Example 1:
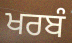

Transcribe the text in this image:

ਖਰਬੰ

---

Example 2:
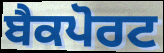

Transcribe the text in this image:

ਬੈਕਪੋਰਟ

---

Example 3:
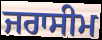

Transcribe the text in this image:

ਜਰਾਸੀਮ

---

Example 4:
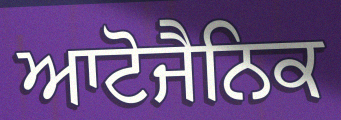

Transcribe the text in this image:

ਆਟੋਜੈਨਿਕ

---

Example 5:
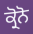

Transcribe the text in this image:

ਕ੍ਰੋਨੋ